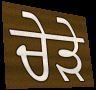
ਚੇੜੇ